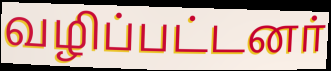
வழிப்பட்டனர்